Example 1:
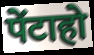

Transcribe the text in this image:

पेंटाहो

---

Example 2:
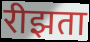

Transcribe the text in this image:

रीझता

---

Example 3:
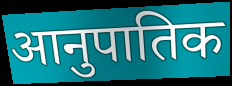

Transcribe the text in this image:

आनुपातिक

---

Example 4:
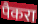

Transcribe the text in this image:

पैकरा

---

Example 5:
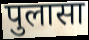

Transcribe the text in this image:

पुलासा